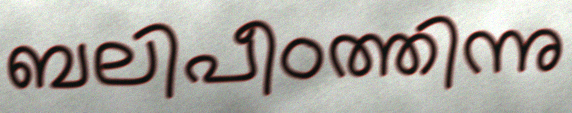
ബലിപീഠത്തിന്നു